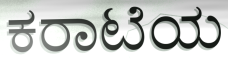
ಕರಾಟೆಯ